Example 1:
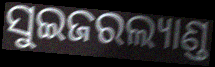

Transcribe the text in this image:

ସୁଇଜରଲ୍ୟାଣ୍ଡ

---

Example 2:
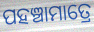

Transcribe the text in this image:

ପହଞ୍ଚାମାତ୍ରେ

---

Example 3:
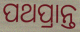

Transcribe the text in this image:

ପଥପ୍ରାନ୍ତ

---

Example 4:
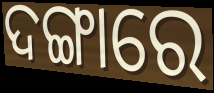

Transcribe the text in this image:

ଦଙ୍ଗାରେ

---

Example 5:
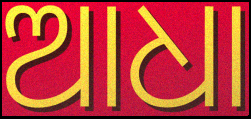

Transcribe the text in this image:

ଆଧା